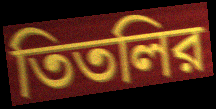
তিতলির